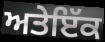
ਅਤੇਇੱਕ